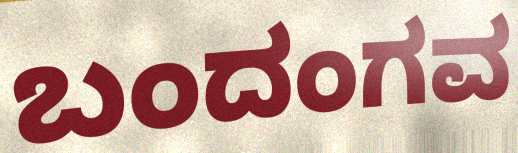
ಬಂದಂಗವ